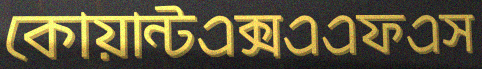
কোয়ান্টএক্সএএফএস